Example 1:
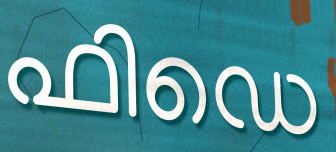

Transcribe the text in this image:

ഫിഡെ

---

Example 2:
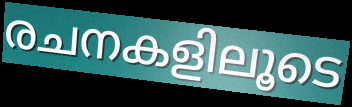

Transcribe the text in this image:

രചനകളിലൂടെ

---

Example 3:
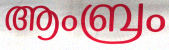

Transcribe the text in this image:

ആംബ്രം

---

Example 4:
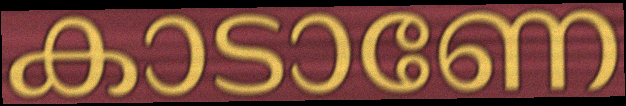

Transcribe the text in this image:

കാടാണേ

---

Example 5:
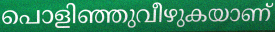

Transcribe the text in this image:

പൊളിഞ്ഞുവീഴുകയാണ്